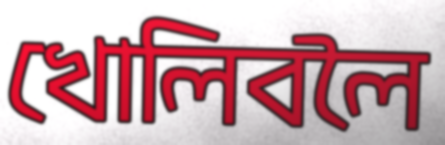
খোলিবলৈ